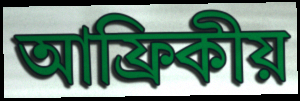
আফ্ৰিকীয়